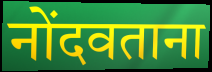
नोंदवताना